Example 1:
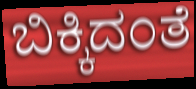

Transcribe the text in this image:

ಬಿಕ್ಕಿದಂತೆ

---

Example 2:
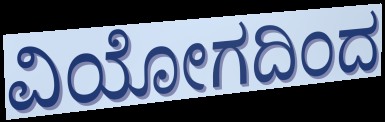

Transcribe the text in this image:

ವಿಯೋಗದಿಂದ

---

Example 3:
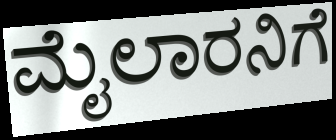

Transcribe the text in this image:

ಮೈಲಾರನಿಗೆ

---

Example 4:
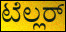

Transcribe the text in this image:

ಟೆಲ್ಲರ್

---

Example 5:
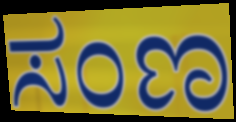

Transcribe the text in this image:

ಸಂಣ